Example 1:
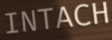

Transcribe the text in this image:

INTACH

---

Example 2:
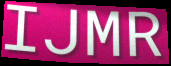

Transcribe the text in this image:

IJMR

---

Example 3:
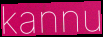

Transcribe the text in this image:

kannu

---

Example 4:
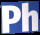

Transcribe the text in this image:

Ph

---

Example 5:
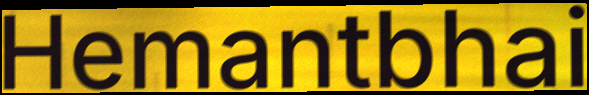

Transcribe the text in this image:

Hemantbhai